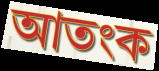
আতংক